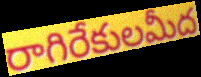
రాగిరేకులమీద